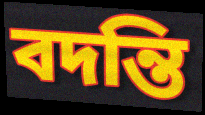
বদন্তি